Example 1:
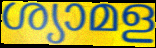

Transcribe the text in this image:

ശ്യാമള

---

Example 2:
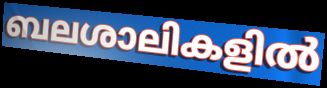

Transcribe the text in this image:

ബലശാലികളിൽ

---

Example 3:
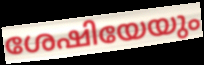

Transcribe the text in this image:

ശേഷിയേയും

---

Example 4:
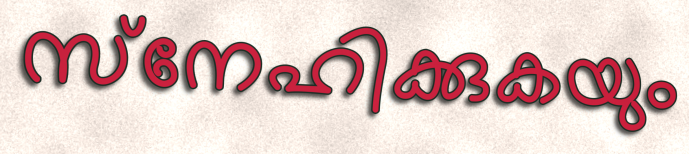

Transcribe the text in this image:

സ്‌നേഹിക്കുകയും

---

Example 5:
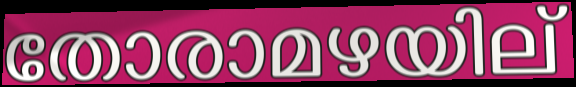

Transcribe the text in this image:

തോരാമഴയില്